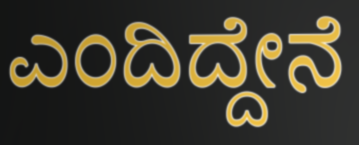
ಎಂದಿದ್ದೇನೆ